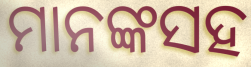
ମାନଙ୍କସହ